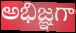
అభిజ్ఞగా